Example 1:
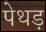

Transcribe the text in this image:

पेथड़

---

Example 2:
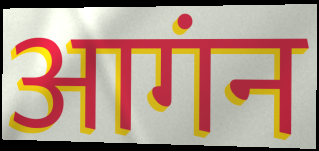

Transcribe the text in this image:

आगंन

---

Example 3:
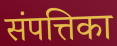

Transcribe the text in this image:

संपत्तिका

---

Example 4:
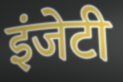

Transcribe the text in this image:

इंजेटी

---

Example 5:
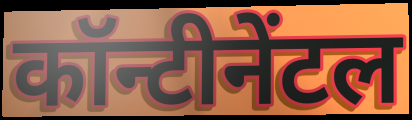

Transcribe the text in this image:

कॉन्टीनेंटल